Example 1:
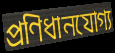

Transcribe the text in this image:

প্ৰণিধানযোগ্য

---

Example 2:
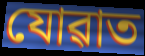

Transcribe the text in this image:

যোৱাত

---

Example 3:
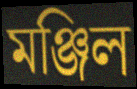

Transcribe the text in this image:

মঞ্জিল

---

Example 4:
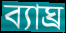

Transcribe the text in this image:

ব্যাঘ্ৰ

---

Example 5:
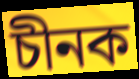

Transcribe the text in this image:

চীনক